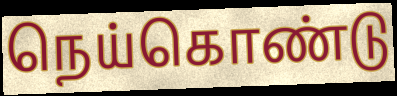
நெய்கொண்டு